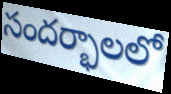
సందర్భాలలో